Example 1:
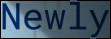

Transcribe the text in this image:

Newly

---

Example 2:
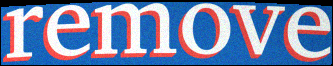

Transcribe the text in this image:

remove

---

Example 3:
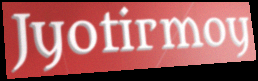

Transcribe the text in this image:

Jyotirmoy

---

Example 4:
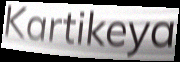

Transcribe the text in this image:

Kartikeya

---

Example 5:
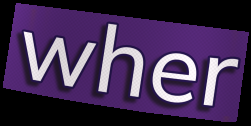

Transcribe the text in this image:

wher